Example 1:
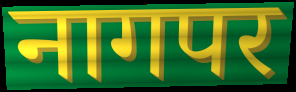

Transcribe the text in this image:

नागपर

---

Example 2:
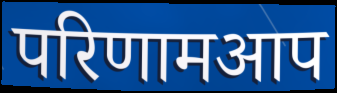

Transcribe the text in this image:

परिणामआप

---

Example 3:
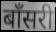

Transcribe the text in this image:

बाँसरी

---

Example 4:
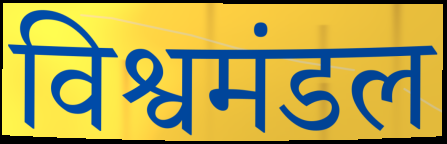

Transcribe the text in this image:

विश्वमंडल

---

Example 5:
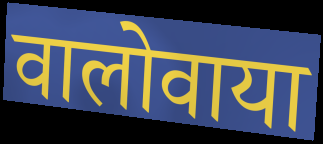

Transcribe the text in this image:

वालोवाया